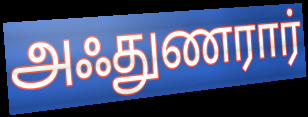
அஃதுணரார்